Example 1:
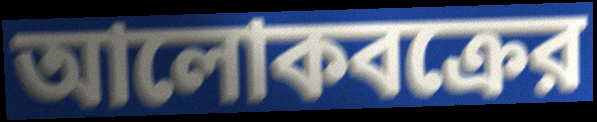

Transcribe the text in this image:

আলোকবক্রের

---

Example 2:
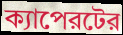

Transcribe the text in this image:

ক্যাপেরটের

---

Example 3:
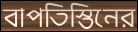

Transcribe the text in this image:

বাপতিস্তিনের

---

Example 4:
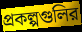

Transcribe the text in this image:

প্রকল্পগুলির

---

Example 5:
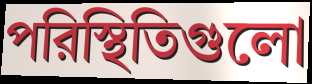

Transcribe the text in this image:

পরিস্থিতিগুলো